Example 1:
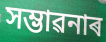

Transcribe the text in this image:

সম্ভাৱনাৰ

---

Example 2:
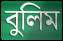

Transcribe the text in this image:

বুলিম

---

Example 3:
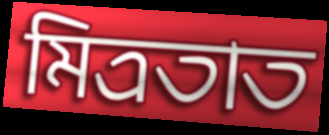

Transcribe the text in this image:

মিত্ৰতাত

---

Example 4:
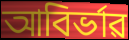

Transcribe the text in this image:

আবিৰ্ভাৱ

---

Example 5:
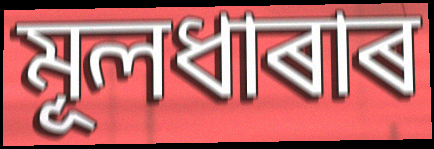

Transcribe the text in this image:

মূলধাৰাৰ